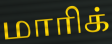
மாரிக்